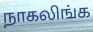
நாகலிங்க